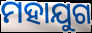
ମହାଯୁଗ